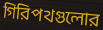
গিরিপথগুলোর